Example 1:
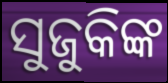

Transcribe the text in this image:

ସୁଜୁକିଙ୍କ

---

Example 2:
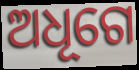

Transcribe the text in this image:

ଅଧୂଗେ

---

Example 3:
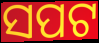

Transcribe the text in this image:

ସପଟ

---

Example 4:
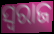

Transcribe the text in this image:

ସ୍ବରାଜ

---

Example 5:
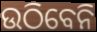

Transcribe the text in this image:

ଉଠିବେନି